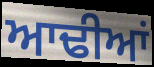
ਆਢੀਆਂ